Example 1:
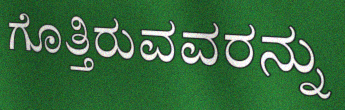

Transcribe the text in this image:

ಗೊತ್ತಿರುವವರನ್ನು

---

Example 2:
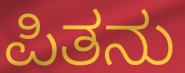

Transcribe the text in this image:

ಪಿತನು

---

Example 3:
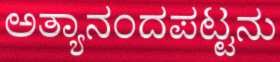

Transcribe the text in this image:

ಅತ್ಯಾನಂದಪಟ್ಟನು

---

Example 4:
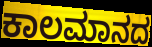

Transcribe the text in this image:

ಕಾಲಮಾನದ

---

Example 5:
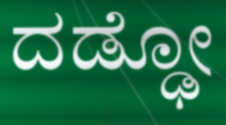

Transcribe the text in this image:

ದಡ್ಢೋ